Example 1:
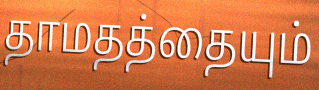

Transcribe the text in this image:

தாமதத்தையும்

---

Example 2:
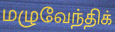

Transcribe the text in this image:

மழுவேந்திக்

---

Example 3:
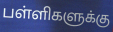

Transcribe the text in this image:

பள்ளிகளுக்கு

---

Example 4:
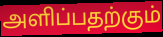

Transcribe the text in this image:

அளிப்பதற்கும்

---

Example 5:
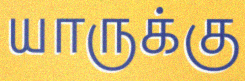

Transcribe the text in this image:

யாருக்கு